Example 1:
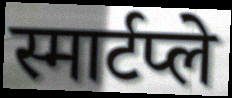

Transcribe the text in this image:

स्मार्टप्ले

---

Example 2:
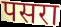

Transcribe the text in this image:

पसरा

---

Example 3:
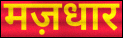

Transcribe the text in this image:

मज़धार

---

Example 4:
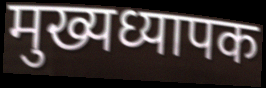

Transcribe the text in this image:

मुख्यध्यापक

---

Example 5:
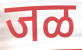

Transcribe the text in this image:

जळ